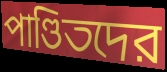
পাণ্ডিতদের